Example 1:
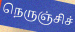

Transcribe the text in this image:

நெருஞ்சிச்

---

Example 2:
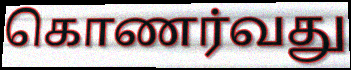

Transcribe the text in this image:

கொணர்வது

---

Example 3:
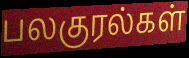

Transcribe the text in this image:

பலகுரல்கள்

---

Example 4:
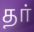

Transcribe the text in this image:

தர்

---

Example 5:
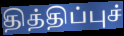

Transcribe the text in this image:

தித்திப்புச்